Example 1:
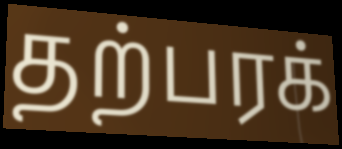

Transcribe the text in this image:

தற்பரக்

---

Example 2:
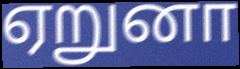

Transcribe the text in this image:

ஏறுனா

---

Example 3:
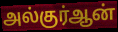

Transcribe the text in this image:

அல்குர்ஆன்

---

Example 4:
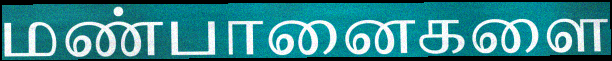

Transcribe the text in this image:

மண்பானைகளை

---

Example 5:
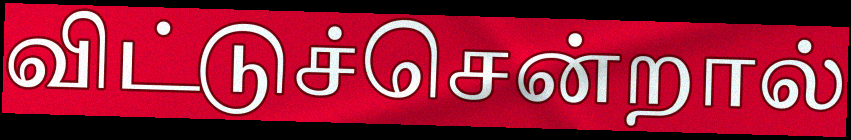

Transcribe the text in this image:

விட்டுச்சென்றால்